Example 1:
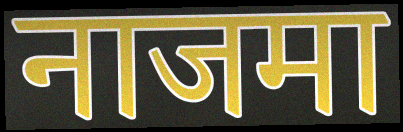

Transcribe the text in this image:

नाजमा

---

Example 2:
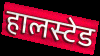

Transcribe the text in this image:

हालस्टेड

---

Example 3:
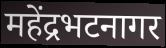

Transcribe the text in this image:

महेंद्रभटनागर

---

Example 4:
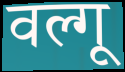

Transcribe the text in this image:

वल्गू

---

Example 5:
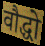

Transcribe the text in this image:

वौद्धो